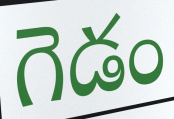
గెడం